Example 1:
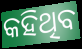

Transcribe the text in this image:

କହିଥିବ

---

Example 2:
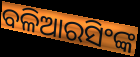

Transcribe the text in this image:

ବଳିଆରସିଂଙ୍କ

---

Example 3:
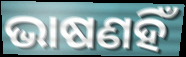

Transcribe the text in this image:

ଭାଷଣହିଁ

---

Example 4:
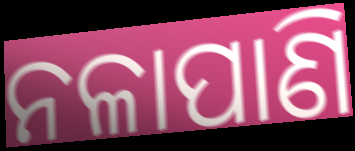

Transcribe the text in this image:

ନଳାପାଣି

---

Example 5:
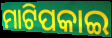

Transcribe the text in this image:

ମାଟିପକାଇ